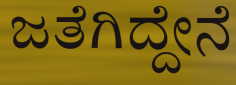
ಜತೆಗಿದ್ದೇನೆ